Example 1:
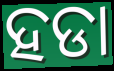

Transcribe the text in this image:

ହଡା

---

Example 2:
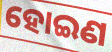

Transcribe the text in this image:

ହୋଇଣ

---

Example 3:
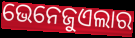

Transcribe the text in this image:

ଭେନେଜୁଏଲାର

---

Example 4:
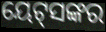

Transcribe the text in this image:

ୟେଟ୍‌ସଙ୍କର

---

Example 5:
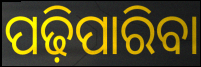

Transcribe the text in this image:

ପଢ଼ିପାରିବା